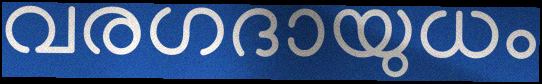
വരഗദായുധം